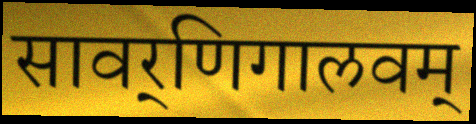
सावर्णिगालवम्